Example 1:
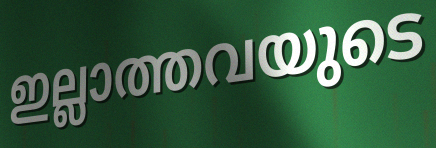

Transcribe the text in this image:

ഇല്ലാത്തവയുടെ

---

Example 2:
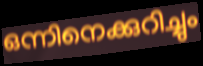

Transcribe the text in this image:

ഒന്നിനെക്കുറിച്ചും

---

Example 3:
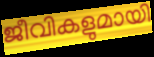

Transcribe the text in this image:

ജീവികളുമായി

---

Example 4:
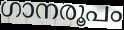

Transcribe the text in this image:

ഗാനരൂപം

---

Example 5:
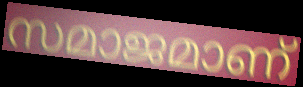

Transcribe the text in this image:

സമാജമാണ്